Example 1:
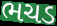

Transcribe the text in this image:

ભચડ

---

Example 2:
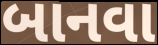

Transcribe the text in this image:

બાનવા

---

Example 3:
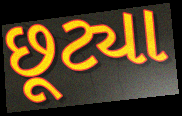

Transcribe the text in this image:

છૂટ્યા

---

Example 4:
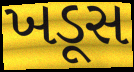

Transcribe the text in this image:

ખડૂસ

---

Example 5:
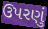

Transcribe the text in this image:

ઉપરણું